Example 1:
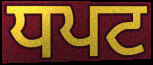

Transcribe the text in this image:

ਧਪਟ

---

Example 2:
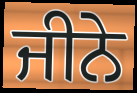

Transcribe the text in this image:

ਜੀਨੇ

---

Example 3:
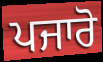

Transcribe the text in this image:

ਪਜਾਰੋ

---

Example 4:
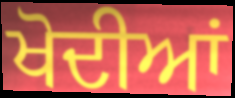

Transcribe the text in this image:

ਖੋਦੀਆਂ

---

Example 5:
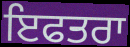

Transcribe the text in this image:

ਇਫਤਰਾ